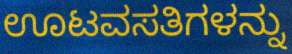
ಊಟವಸತಿಗಳನ್ನು